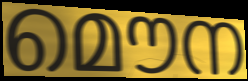
മൌന